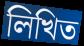
লিখিত